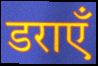
डराएँ